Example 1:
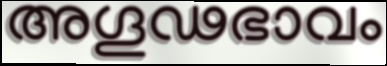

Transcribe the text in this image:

അഗൂഢഭാവം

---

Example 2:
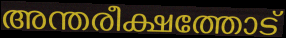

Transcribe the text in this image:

അന്തരീക്ഷത്തോട്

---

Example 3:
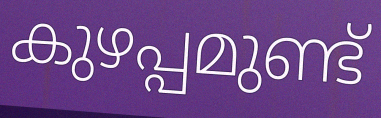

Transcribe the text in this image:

കുഴപ്പമുണ്ട്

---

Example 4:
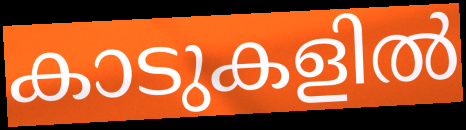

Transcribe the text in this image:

കാടുകളിൽ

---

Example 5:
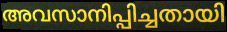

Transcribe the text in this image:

അവസാനിപ്പിച്ചതായി